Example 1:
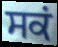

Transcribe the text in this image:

ਸਕਂ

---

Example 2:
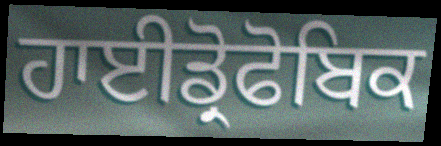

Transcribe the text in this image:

ਹਾਈਡ੍ਰੋਫੋਬਿਕ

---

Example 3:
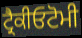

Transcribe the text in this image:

ਟ੍ਰੈਕੀਓਟੋਮੀ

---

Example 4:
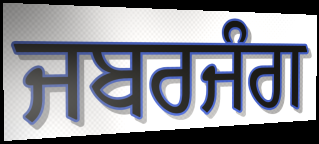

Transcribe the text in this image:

ਜਬਰਜੰਗ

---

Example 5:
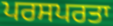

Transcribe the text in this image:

ਪਰਸਪਰਤਾ